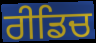
ਰੀਡਿਚ